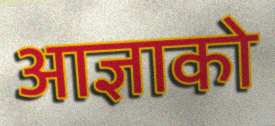
आज्ञाको